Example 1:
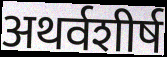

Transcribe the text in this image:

अथर्वशीर्ष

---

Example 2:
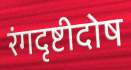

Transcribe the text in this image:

रंगदृष्टीदोष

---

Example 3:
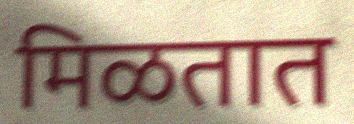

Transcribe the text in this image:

मिळतात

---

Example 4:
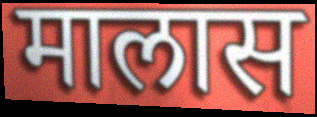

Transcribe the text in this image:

मालास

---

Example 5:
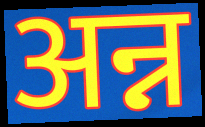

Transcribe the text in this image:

अन्न